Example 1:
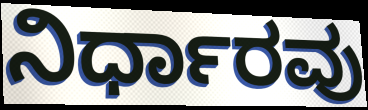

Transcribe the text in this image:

ನಿರ್ಧಾರವು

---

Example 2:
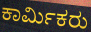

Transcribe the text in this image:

ಕಾರ್ಮಿಕರು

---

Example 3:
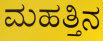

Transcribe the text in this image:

ಮಹತ್ತಿನ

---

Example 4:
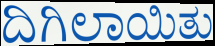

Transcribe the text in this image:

ದಿಗಿಲಾಯಿತು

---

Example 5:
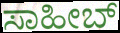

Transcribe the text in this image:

ಸಾಹೀಬ್